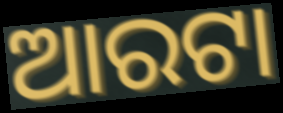
ଆରଟା